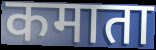
कमाता